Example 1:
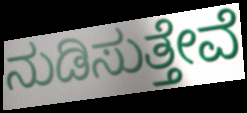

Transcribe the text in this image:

ನುಡಿಸುತ್ತೇವೆ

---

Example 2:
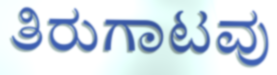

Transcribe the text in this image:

ತಿರುಗಾಟವು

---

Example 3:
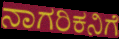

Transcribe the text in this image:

ನಾಗರಿಕನಿಗೆ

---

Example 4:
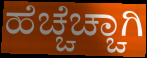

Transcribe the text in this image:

ಹೆಚ್ಚೆಚ್ಚಾಗಿ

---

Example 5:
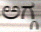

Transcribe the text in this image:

ಅಗ್ಗ